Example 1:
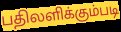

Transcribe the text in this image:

பதிலளிக்கும்படி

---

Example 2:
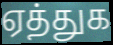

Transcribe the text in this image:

ஏத்துக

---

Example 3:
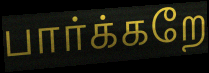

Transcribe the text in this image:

பார்க்கறே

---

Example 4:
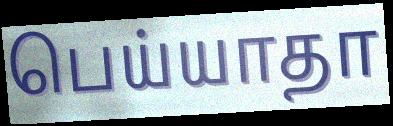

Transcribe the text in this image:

பெய்யாதா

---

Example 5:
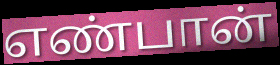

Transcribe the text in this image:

எண்பான்